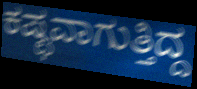
ಕಷ್ಟವಾಗುತ್ತಿದ್ದ